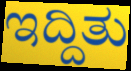
ಇದ್ದಿತು